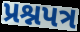
પ્રશ્નપત્ર